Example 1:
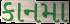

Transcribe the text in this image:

કાનમા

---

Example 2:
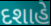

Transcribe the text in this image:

દશાહે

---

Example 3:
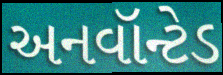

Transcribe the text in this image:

અનવૉન્ટેડ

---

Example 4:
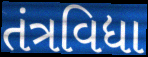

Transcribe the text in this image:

તંત્રવિદ્યા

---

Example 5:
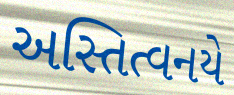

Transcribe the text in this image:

અસ્તિત્વનયે